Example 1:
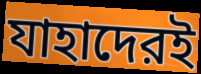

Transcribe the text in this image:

যাহাদেরই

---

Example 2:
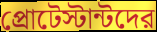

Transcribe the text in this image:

প্রোটেস্টান্টদের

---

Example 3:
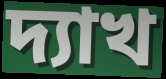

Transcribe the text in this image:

দ্যাখ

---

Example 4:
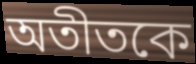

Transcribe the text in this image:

অতীতকে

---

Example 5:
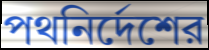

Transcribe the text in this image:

পথনির্দেশের